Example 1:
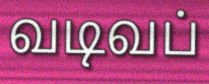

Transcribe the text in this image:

வடிவப்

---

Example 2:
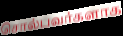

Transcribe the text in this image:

சொல்பவர்களாக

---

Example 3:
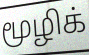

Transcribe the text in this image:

மூழிக்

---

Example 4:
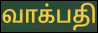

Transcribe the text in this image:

வாக்பதி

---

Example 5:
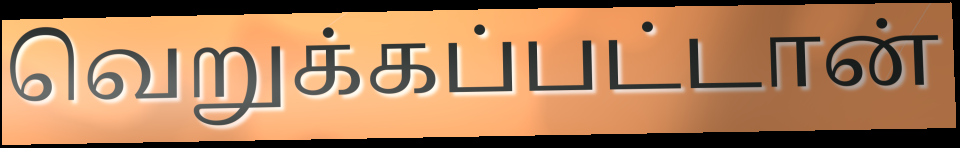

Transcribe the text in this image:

வெறுக்கப்பட்டான்